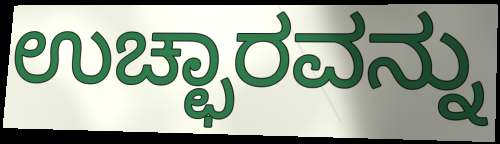
ಉಚ್ಛಾರವನ್ನು